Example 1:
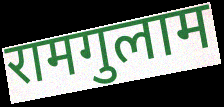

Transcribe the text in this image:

रामगुलाम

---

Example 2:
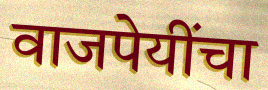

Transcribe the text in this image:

वाजपेयींचा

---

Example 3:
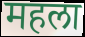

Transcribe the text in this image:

महला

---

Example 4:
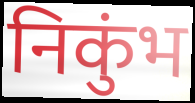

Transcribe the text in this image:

निकुंभ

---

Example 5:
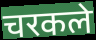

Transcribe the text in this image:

चरकले